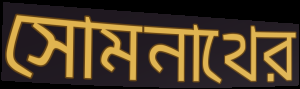
সোমনাথের